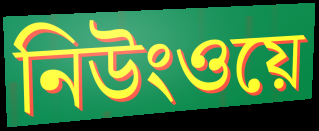
নিউংওয়ে